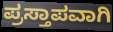
ಪ್ರಸ್ತಾಪವಾಗಿ